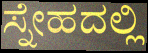
ಸ್ನೇಹದಲ್ಲಿ